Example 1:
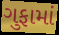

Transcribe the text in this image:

ગુફામાં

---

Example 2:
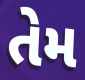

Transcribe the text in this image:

તેમ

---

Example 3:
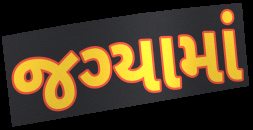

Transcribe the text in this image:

જગ્યામાં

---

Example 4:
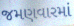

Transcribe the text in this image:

જમણવારમાં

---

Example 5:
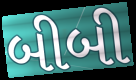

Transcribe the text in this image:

બીબી